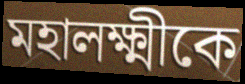
মহালক্ষ্মীকে